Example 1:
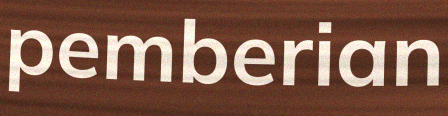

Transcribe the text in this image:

pemberian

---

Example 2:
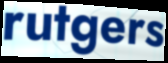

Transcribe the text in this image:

rutgers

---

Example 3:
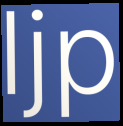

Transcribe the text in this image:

ljp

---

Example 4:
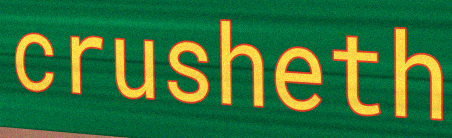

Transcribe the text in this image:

crusheth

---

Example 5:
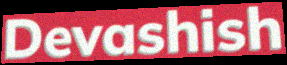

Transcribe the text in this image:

Devashish